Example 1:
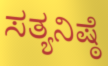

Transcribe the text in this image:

ಸತ್ಯನಿಷ್ಠೆ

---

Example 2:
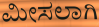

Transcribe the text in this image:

ಮೀಸಲಾಗಿ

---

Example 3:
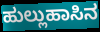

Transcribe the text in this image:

ಹುಲ್ಲುಹಾಸಿನ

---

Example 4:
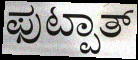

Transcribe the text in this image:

ಫುಟ್ಪಾತ್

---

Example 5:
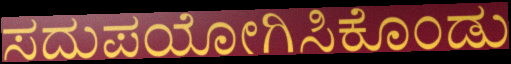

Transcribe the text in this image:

ಸದುಪಯೋಗಿಸಿಕೊಂಡು